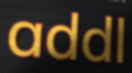
addl